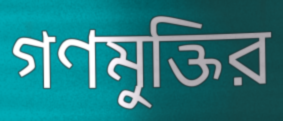
গণমুক্তির